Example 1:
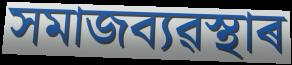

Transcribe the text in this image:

সমাজব্যৱস্থাৰ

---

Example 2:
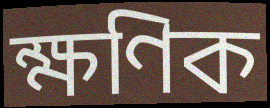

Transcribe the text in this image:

ক্ষণিক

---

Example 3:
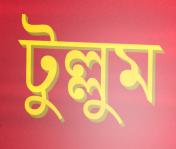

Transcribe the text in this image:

টুল্লুম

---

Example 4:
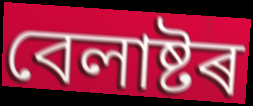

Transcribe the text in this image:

বেলাষ্টৰ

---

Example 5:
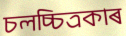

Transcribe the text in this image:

চলচ্চিত্ৰকাৰ